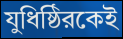
যুধিষ্ঠিরকেই